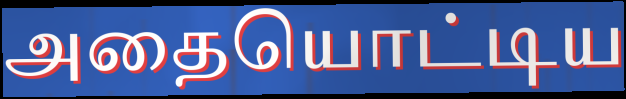
அதையொட்டிய